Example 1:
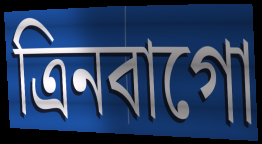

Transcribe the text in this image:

ত্রিনবাগো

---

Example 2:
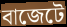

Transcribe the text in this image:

বাজেটে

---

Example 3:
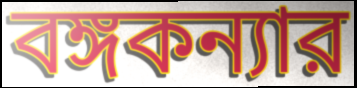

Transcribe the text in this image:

বঙ্গকন্যার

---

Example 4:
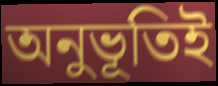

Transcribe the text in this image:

অনুভূতিই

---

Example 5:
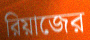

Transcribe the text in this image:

রিয়াজের